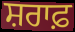
ਸ਼ਰਾਫ਼